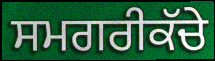
ਸਮਗਰੀਕੱਚੇ